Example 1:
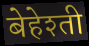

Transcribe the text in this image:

बेहेश्ती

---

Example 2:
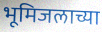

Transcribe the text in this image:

भूमिजलाच्या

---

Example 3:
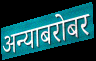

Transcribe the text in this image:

अन्याबरोबर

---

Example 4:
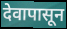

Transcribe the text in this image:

देवापासून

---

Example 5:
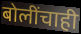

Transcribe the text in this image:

बोलींचाही